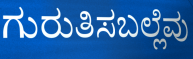
ಗುರುತಿಸಬಲ್ಲೆವು